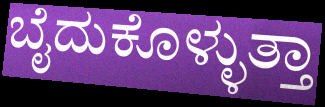
ಬೈದುಕೊಳ್ಳುತ್ತಾ